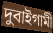
দুবাইগামী